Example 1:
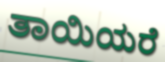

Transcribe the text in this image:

ತಾಯಿಯರೆ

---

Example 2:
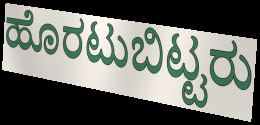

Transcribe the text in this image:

ಹೊರಟುಬಿಟ್ಟರು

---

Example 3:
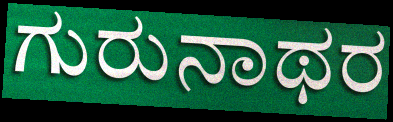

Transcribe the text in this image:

ಗುರುನಾಥರ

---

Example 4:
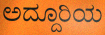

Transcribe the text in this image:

ಅದ್ದೂರಿಯ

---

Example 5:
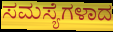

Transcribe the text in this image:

ಸಮಸ್ಯೆಗಳಾದ